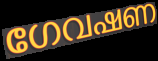
ഗേവഷണ